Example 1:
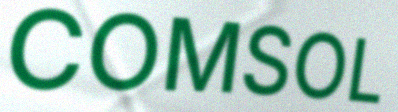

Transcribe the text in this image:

COMSOL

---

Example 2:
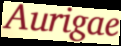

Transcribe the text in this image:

Aurigae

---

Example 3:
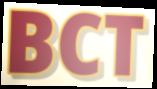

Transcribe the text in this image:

BCT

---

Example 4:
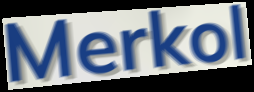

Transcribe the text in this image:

Merkol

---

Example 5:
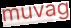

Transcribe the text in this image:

muvag